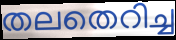
തലതെറിച്ച